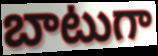
బాటుగా